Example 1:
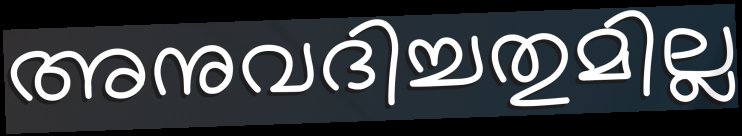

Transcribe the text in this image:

അനുവദിച്ചതുമില്ല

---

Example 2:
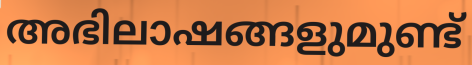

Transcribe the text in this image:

അഭിലാഷങ്ങളുമുണ്ട്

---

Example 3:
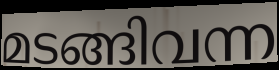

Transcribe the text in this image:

മടങ്ങിവന്ന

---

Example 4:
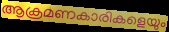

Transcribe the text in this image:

ആക്രമണകാരികളെയും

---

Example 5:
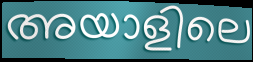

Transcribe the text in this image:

അയാളിലെ